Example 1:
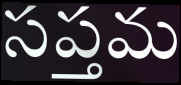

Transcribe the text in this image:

సప్తమ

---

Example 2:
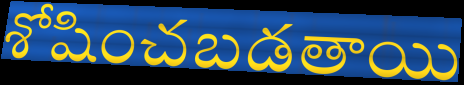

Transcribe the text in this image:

శోషించబడతాయి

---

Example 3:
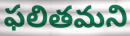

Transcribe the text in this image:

ఫలితమని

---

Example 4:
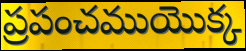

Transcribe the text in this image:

ప్రపంచముయొక్క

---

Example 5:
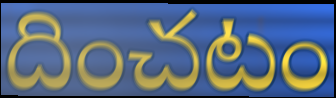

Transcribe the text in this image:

దించటం